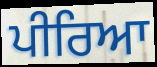
ਪੀਰਿਆ